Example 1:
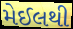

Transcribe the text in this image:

મેઈલથી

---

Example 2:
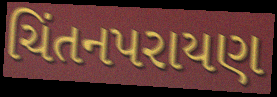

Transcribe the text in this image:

ચિંતનપરાયણ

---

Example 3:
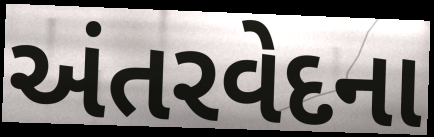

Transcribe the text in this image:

અંતરવેદના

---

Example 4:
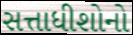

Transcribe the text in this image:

સત્તાધીશોનો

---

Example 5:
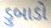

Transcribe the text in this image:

ડુબાડો